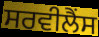
ਸਰਵੀਲੈਂਸ